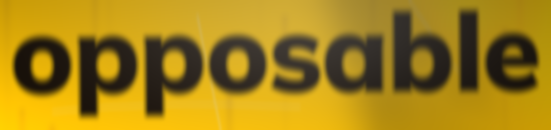
opposable